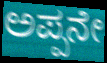
ಅಪ್ಪನೇ